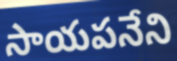
సాయపనేని